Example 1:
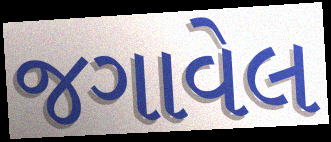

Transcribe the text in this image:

જગાવેલ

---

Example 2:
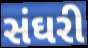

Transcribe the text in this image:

સંઘરી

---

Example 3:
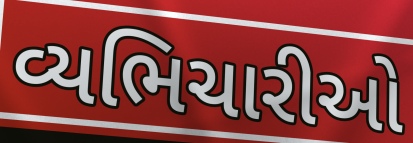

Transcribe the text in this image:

વ્યભિચારીઓ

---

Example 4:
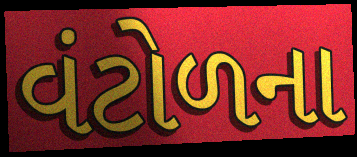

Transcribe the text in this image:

વંટોળના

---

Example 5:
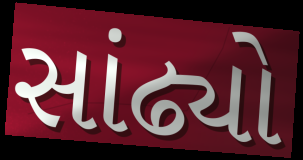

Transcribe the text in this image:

સાંઢ્યો